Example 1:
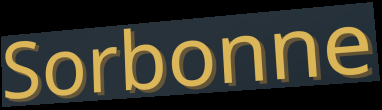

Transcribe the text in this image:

Sorbonne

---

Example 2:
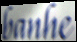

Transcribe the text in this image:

banhe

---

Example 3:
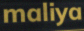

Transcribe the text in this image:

maliya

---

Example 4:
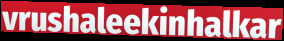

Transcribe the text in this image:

vrushaleekinhalkar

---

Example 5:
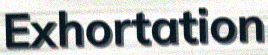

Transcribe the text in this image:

Exhortation